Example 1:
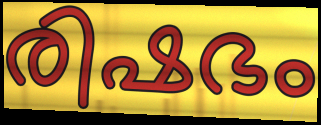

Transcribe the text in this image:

രിഷഭം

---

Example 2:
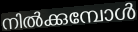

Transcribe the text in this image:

നിൽക്കുമ്പോൾ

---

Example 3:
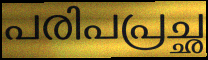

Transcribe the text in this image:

പരിപപ്രച്ഛ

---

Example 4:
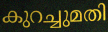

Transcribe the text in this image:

കുറച്ചുമതി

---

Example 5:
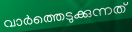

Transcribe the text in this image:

വാർത്തെടുക്കുന്നത്